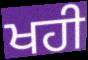
ਖਹੀ